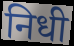
निधी